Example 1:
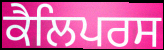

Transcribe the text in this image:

ਕੈਲਿਪਰਸ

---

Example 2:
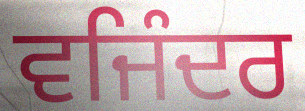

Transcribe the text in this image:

ਵਜਿੰਦਰ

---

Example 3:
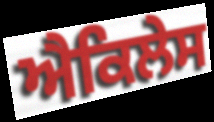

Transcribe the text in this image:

ਐਕਿਲੇਸ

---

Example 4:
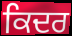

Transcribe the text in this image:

ਕਿਦਰ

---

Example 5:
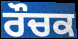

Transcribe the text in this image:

ਰੌਚਕ